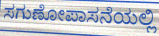
ಸಗುಣೋಪಾಸನೆಯಲ್ಲಿ